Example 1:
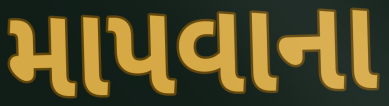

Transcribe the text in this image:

માપવાના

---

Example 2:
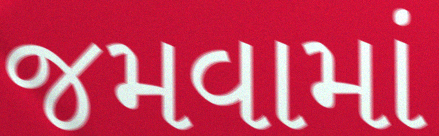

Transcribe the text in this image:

જમવામાં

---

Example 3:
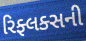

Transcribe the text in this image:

રિફ્લક્સની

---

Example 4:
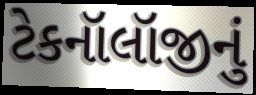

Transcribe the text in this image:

ટેકનૉલૉજીનું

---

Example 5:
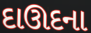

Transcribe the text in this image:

દાઊદના